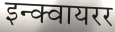
इन्क्वायरर